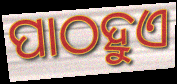
ପାଠହୁଏ